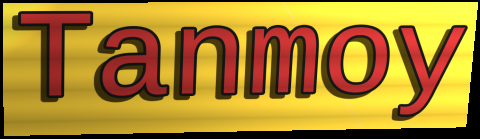
Tanmoy